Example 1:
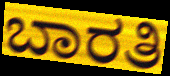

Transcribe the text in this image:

ಬಾರತಿ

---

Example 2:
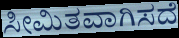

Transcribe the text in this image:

ಸೀಮಿತವಾಗಿಸದೆ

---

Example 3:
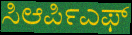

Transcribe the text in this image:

ಸಿಆರ್ಪಿಎಫ್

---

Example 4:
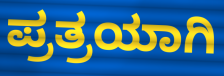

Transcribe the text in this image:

ಪ್ರತ್ರಯಾಗಿ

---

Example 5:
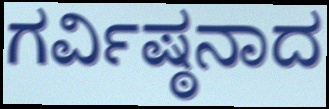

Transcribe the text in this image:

ಗರ್ವಿಷ್ಠನಾದ